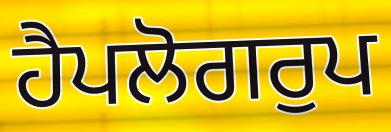
ਹੈਪਲੋਗਰੁਪ